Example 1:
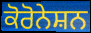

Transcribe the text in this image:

ਕੋਰੋਨੇਸ਼ਨ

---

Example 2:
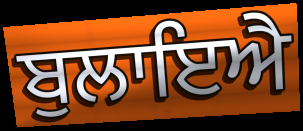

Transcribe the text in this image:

ਬੁਲਾਇਐ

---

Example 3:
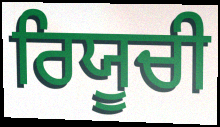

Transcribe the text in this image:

ਰਿਯੂਚੀ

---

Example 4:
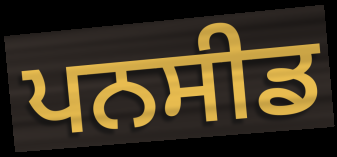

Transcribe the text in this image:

ਪਨਸੀਡ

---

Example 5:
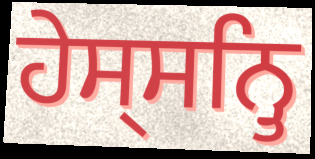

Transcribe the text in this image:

ਹੇਸ੍ਸਨ੍ਤਿ